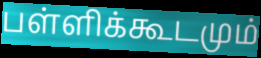
பள்ளிக்கூடமும்